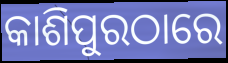
କାଶିପୁରଠାରେ